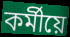
কৰ্মীয়ে